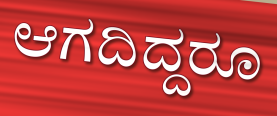
ಆಗದಿದ್ದರೂ